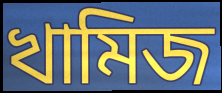
খামিজ